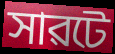
সাৱটে